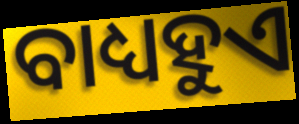
ବାଧ୍ୟହୁଏ